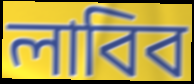
লাবিব